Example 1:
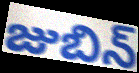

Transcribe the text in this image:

జుబిన్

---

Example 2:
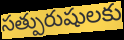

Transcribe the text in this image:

సత్పురుషులకు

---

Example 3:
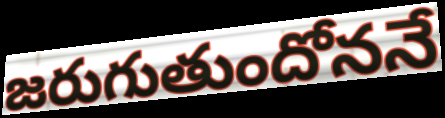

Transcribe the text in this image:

జరుగుతుందోననే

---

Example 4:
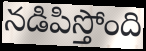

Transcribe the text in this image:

నడిపిస్తోంది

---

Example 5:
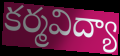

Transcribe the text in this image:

కర్మవిద్యా